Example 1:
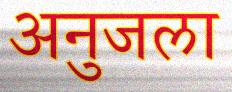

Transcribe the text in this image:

अनुजला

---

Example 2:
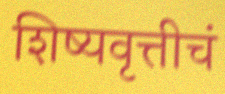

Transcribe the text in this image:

शिष्यवृत्तीचं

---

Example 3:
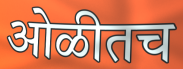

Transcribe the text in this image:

ओळीतच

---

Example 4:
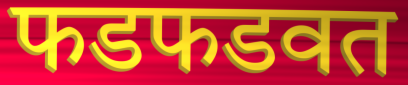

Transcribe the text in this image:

फडफडवत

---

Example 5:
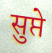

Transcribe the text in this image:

सुप्ते